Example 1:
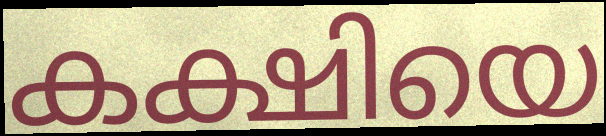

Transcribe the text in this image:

കക്ഷിയെ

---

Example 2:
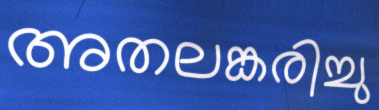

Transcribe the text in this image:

അതലങ്കരിച്ചു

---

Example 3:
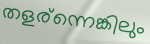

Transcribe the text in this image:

തളര്ന്നെങ്കിലും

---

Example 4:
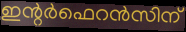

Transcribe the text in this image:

ഇന്റർഫെറൻസിന്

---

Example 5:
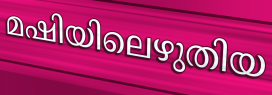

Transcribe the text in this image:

മഷിയിലെഴുതിയ